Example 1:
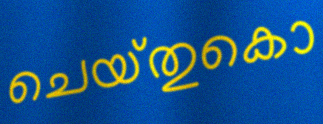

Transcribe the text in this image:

ചെയ്‌തുകൊ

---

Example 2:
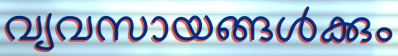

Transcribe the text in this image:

വ്യവസായങ്ങൾക്കും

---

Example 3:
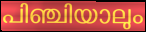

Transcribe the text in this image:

പിഞ്ചിയാലും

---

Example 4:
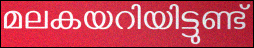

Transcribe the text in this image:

മലകയറിയിട്ടുണ്ട്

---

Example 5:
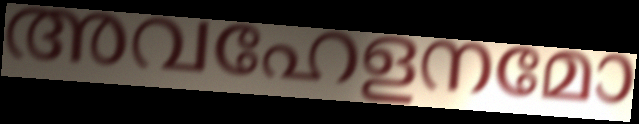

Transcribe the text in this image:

അവഹേളനമോ